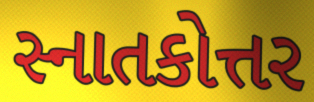
સ્નાતકોત્તર